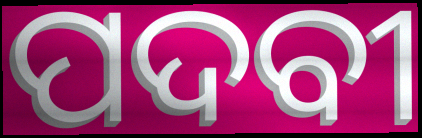
ପଦବୀ